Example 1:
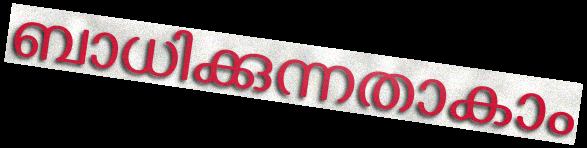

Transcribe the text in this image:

ബാധിക്കുന്നതാകാം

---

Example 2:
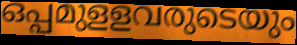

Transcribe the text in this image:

ഒപ്പമുളളവരുടെയും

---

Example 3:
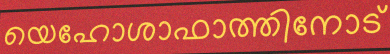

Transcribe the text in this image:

യെഹോശാഫാത്തിനോട്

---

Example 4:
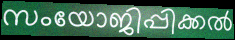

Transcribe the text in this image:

സംയോജിപ്പിക്കൽ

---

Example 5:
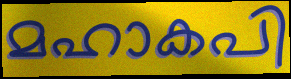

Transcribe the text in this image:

മഹാകപി